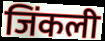
जिंकली